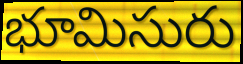
భూమిసురు